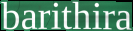
barithira